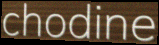
chodine